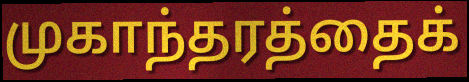
முகாந்தரத்தைக்